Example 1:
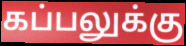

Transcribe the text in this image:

கப்பலுக்கு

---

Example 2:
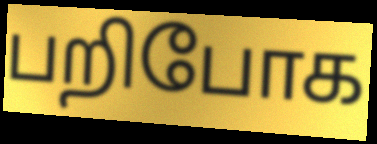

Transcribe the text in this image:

பறிபோக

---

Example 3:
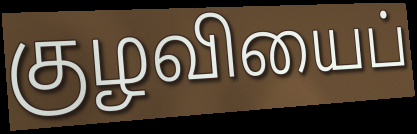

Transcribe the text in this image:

குழவியைப்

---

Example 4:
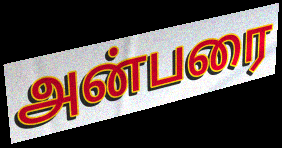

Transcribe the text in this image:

அன்பரை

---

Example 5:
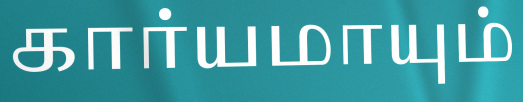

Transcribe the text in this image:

கார்யமாயும்